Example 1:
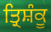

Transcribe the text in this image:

ਤ੍ਰਿਸ਼ੰਕੂ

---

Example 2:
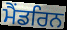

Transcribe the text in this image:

ਮੈਂਡਰਿਨ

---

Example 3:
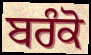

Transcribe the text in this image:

ਬਰੰਕੋ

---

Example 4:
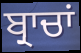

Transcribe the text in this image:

ਬ੍ਰਾਚਾਂ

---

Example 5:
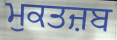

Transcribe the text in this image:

ਮੁਕਤਜ਼ਬ